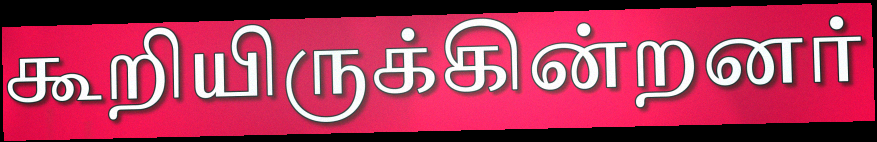
கூறியிருக்கின்றனர்